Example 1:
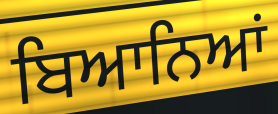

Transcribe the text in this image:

ਬਿਆਨਿਆਂ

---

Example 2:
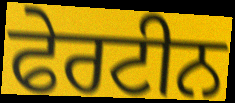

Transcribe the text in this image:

ਫੇਰਟੀਨ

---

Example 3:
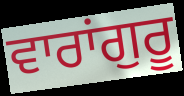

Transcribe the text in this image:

ਵਾਰਾਂਗੁਰੂ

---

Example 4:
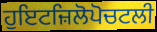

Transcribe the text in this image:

ਹੁਇਟਜ਼ਿਲੋਪੋਚਟਲੀ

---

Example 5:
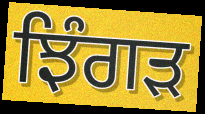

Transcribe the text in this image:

ਝਿੰਗੜ